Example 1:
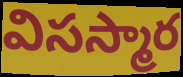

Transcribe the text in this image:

విసస్మార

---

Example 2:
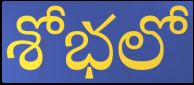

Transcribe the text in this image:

శోభలో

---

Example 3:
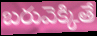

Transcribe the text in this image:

బరువెక్కితే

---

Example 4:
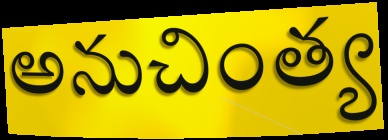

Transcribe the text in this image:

అనుచింత్య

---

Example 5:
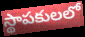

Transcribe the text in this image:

స్థాపకులలో